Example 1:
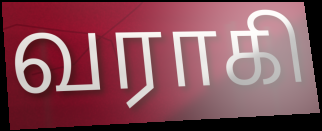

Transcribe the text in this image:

வராகி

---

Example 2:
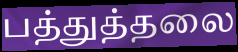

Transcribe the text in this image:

பத்துத்தலை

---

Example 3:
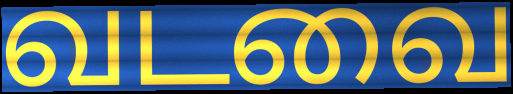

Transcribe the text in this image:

வடவை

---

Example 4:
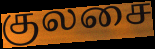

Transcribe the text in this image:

குலசை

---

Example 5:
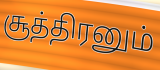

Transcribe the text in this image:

சூத்திரனும்